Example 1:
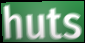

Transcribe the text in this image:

huts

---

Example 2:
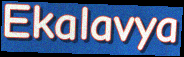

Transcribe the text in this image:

Ekalavya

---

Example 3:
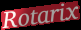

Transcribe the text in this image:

Rotarix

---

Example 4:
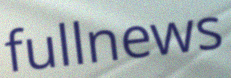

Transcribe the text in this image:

fullnews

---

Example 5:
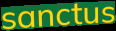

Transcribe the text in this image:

sanctus